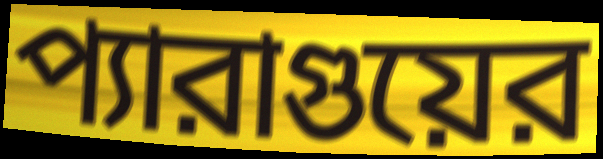
প্যারাগুয়ের